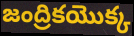
జంద్రికయొక్క